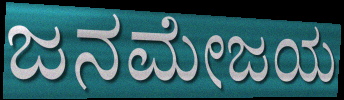
ಜನಮೇಜಯ